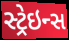
સ્ટ્રેઇન્સ